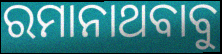
ରମାନାଥବାବୁ